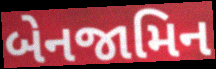
બેનજામિન